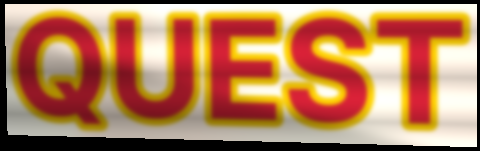
QUEST